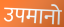
उपमानो